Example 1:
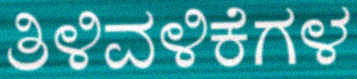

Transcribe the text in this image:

ತಿಳಿವಳಿಕೆಗಳ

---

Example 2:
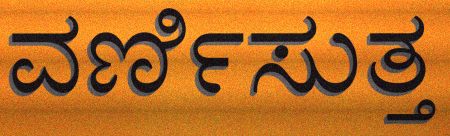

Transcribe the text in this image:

ವರ್ಣಿಸುತ್ತ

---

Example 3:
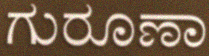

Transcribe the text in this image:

ಗುರೂಣಾ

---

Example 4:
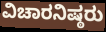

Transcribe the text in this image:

ವಿಚಾರನಿಷ್ಠರು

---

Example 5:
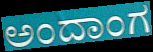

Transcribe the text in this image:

ಅಂದಾಂಗ